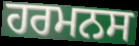
ਹਰਮਨਸ